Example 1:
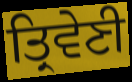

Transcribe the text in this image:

ਤ੍ਰਿਵੇਣੀ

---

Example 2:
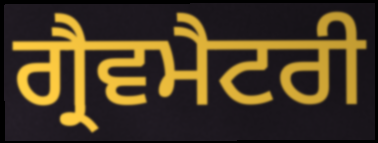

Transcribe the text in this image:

ਗ੍ਰੈਵਮੈਟਰੀ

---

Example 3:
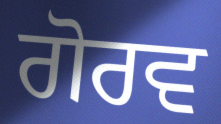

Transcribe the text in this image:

ਗੋਰਵ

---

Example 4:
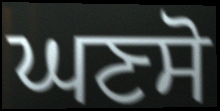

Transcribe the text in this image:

ਘਣਸੋ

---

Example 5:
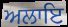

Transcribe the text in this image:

ਅਲਾਇ